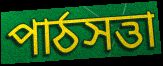
পাঠসত্তা